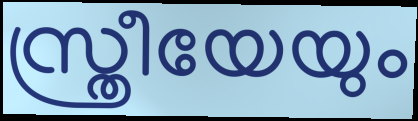
സ്ത്രീയേയും